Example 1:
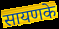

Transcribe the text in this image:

सायणके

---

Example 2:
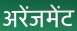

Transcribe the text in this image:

अरेंजमेंट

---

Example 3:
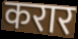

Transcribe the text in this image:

करार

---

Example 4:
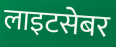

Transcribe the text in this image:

लाइटसेबर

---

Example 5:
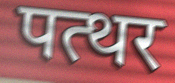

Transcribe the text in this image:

पत्‍थर